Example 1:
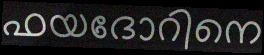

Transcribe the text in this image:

ഫയദോറിനെ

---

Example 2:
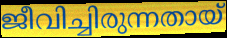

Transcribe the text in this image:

ജീവിച്ചിരുന്നതായ്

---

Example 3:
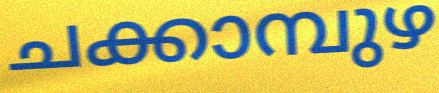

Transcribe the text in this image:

ചക്കാമ്പുഴ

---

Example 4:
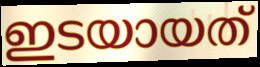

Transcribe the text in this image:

ഇടയായത്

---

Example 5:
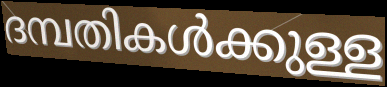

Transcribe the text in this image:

ദമ്പതികൾക്കുള്ള